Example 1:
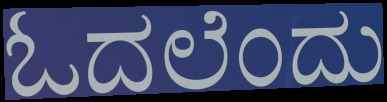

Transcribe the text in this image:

ಓದಲೆಂದು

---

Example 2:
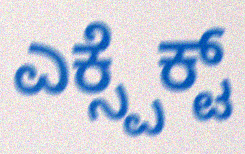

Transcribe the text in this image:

ಎಕ್ಸ್ಪೆಕ್ಟ್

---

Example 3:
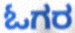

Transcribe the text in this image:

ಓಗರ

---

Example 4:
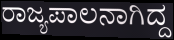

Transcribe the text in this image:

ರಾಜ್ಯಪಾಲನಾಗಿದ್ದ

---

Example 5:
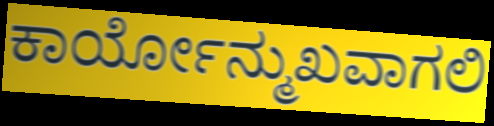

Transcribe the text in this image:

ಕಾರ್ಯೋನ್ಮುಖವಾಗಲಿ